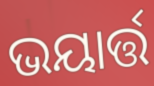
ଭୟାର୍ତ୍ତ